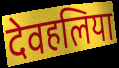
देवहलिया